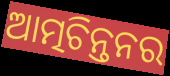
ଆତ୍ମଚିନ୍ତନର